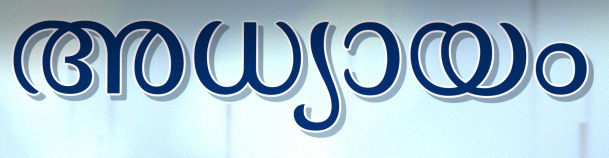
അധ്യായം